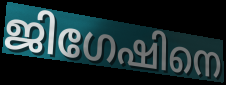
ജിഗേഷിനെ